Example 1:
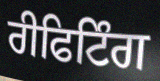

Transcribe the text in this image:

ਰੀਫਿਟਿੰਗ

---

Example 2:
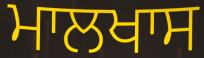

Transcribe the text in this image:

ਮਾਲਖਾਸ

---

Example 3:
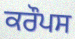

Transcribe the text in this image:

ਕਰੌਪਸ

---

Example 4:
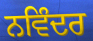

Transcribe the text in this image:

ਨਵਿੰਦਰ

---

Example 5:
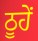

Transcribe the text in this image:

ਠੂਹੇਂ